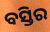
ବସ୍ତିର